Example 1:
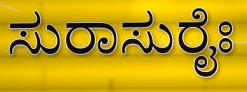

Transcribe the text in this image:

ಸುರಾಸುರೈಃ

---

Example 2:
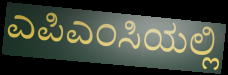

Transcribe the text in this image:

ಎಪಿಎಂಸಿಯಲ್ಲಿ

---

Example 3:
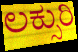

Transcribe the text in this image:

ಲಕ್ಸುರಿ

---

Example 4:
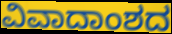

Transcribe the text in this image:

ವಿವಾದಾಂಶದ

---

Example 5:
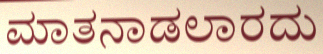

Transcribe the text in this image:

ಮಾತನಾಡಲಾರದು